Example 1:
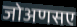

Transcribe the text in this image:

जोअणसए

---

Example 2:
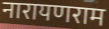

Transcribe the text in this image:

नारायणराम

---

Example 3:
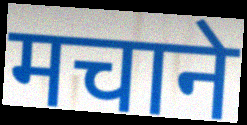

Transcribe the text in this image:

मचाने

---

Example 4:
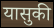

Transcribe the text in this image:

यासुकी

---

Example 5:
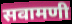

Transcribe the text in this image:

सवामणी